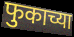
फुकाच्या